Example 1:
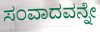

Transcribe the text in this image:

ಸಂವಾದವನ್ನೇ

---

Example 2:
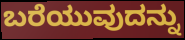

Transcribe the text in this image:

ಬರೆಯುವುದನ್ನು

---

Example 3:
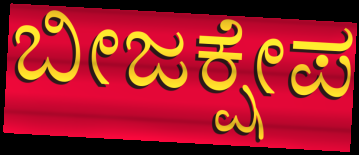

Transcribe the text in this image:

ಬೀಜಕ್ಷೇಪ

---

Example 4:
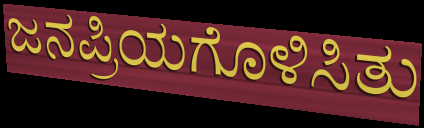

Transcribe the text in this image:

ಜನಪ್ರಿಯಗೊಳಿಸಿತು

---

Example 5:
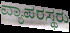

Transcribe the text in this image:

ವ್ಯಾಪರಸ್ಥರು